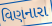
વિણનારા